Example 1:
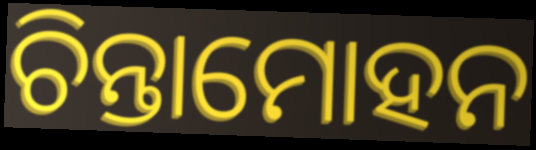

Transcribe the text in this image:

ଚିନ୍ତାମୋହନ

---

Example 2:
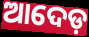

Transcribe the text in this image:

ଆଦେଡ଼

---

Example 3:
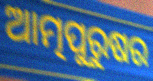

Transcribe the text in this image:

ଆତ୍ମପୁରୁଷର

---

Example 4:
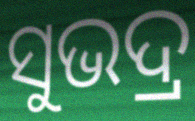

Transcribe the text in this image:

ସୁଭଦ୍ର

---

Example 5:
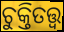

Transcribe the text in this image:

ଚୁକ୍ତିତତ୍ତ୍ଵ